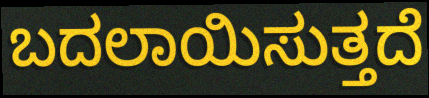
ಬದಲಾಯಿಸುತ್ತದೆ